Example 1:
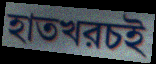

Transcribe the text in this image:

হাতখরচই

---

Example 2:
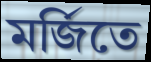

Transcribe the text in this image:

মর্জিতে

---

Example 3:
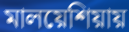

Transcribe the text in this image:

মালয়েশিয়ায়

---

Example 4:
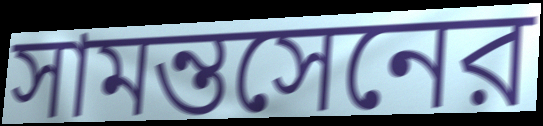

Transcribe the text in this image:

সামন্তসেনের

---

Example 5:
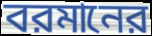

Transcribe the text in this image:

বরমানের